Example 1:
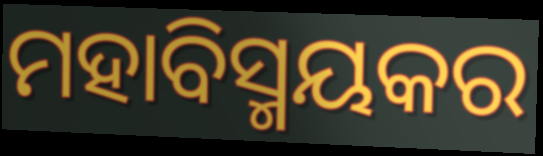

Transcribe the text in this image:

ମହାବିସ୍ମୟକର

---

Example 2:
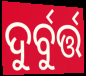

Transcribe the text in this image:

ଦୁର୍ବୁର୍ତ୍ତ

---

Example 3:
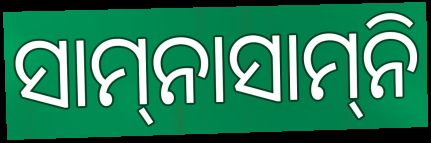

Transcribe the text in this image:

ସାମ୍‍ନାସାମ୍‍ନି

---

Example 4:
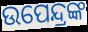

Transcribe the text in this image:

ଉପେନ୍ଦ୍ରଙ୍କ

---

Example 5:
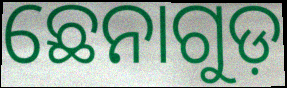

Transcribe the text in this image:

ଛେନାଗୁଡ଼